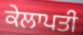
ਕੇਲਾਪਤੀ